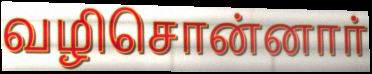
வழிசொன்னார்